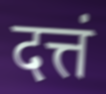
दत्तं